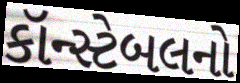
કૉન્સ્ટેબલનો